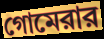
গোমেরার